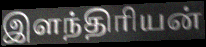
இளந்திரியன்